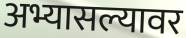
अभ्यासल्यावर